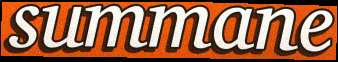
summane